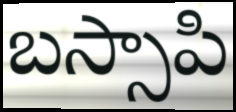
బస్సాపి